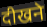
दीखने